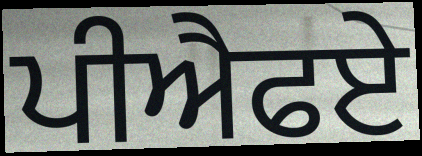
ਪੀਐਫਏ